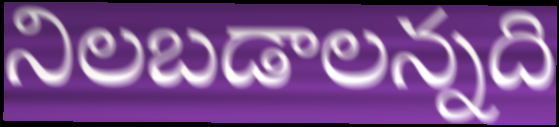
నిలబడాలన్నది